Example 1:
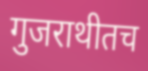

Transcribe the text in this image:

गुजराथीतच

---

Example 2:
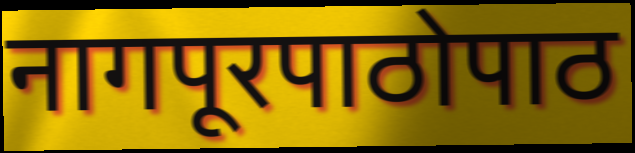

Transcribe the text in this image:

नागपूरपाठोपाठ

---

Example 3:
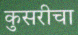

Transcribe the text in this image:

कुसरीचा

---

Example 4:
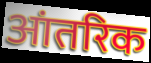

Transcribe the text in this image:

आंतरिक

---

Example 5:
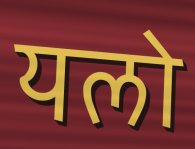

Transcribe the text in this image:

यलो